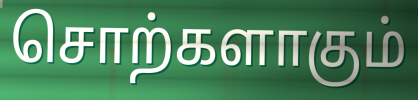
சொற்களாகும்